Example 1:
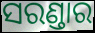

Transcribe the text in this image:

ସରଣ୍ଡାର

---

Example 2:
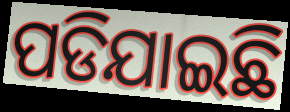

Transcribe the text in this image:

ପଡିଯାଇଛି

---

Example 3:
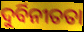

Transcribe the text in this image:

ଦୁର୍ବିନୀତତା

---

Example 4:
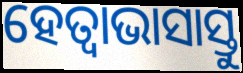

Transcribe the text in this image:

ହେତ୍ଵାଭାସାସ୍ତୁ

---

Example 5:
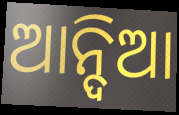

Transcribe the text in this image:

ଆନ୍ଦିଆ